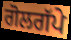
ਗੋਲਗੱਪੇ